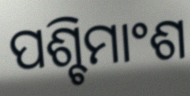
ପଶ୍ଚିମାଂଶ